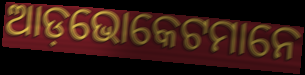
ଆଡ଼ଭୋକେଟମାନେ